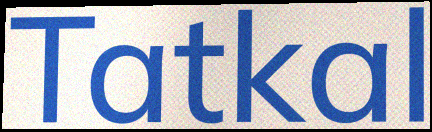
Tatkal